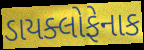
ડાયક્લોફેનાક